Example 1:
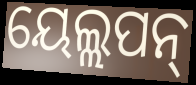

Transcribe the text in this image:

ୟେଲ୍ଲପନ୍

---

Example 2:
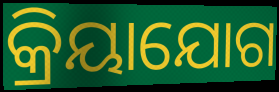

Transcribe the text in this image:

କ୍ରିୟାଯୋଗ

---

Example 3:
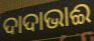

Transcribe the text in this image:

ଦାଦାଭାଈ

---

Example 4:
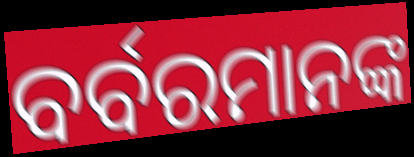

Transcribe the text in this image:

ବର୍ବରମାନଙ୍କ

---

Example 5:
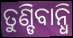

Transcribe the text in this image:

ତୁଣ୍ଡିବାନ୍ଧି